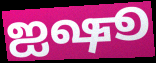
ஐஷூ